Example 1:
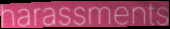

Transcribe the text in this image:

harassments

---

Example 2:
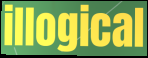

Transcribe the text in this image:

illogical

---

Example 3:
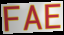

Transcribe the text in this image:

FAE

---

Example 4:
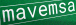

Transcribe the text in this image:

mavemsa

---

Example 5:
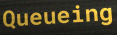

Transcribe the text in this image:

Queueing